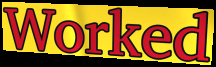
Worked